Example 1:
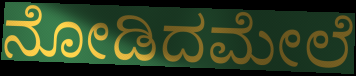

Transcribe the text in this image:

ನೋಡಿದಮೇಲೆ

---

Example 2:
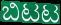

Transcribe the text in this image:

ಬಿಟಟ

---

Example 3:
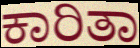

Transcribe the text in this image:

ಕಾರಿತಾ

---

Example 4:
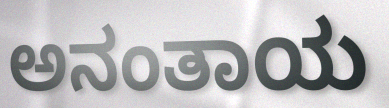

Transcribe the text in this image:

ಅನಂತಾಯ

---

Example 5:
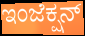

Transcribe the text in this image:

ಇಂಜೆಕ್ಷನ್